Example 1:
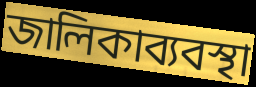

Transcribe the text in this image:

জালিকাব্যবস্থা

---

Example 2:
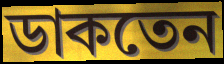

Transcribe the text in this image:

ডাকতেন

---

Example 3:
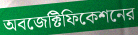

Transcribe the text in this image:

অবজেক্টিফিকেশনের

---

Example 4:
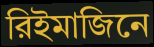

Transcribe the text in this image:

রিইমাজিনে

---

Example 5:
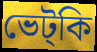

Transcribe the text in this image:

ভেট্কি